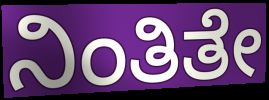
ನಿಂತಿತೇ